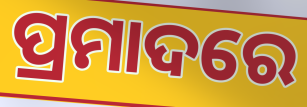
ପ୍ରମାଦରେ